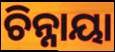
ଚିନ୍ନାୟା